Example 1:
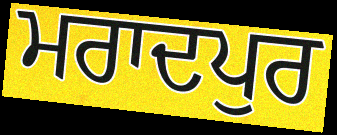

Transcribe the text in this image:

ਮਰਾਦਪੁਰ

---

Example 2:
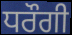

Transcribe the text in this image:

ਧਰੌਗੀ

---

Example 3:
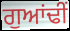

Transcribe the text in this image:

ਗੁਆਂਢੀਂ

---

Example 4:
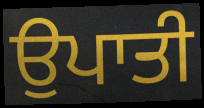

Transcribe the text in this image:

ਉਪਾਤੀ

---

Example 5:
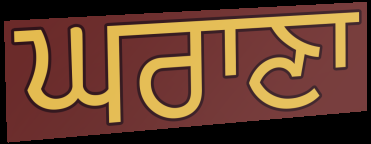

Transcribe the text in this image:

ਘਰਾਣਾ